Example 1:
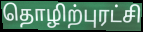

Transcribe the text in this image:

தொழிற்புரட்சி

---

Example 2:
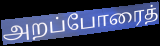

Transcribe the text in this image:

அறப்போரைத்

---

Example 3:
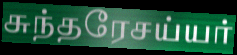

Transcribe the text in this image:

சுந்தரேசய்யர்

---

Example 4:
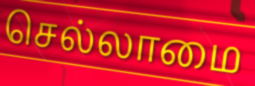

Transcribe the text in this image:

செல்லாமை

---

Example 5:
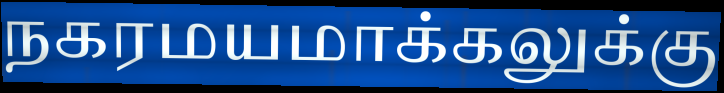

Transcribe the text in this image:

நகரமயமாக்கலுக்கு